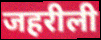
जहरीली